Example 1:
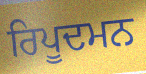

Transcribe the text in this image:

ਰਿਪੂਦਮਨ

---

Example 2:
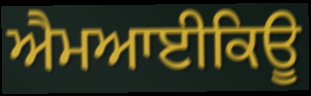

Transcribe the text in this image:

ਐਮਆਈਕਿਊ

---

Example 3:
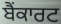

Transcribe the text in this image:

ਬੈਂਕਾਰਟ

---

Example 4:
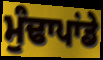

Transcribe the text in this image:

ਮੁੰਢਾਪਾਂਡੇ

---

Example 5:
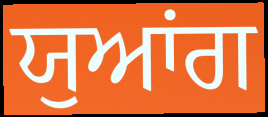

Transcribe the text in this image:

ਯੁਆਂਗ